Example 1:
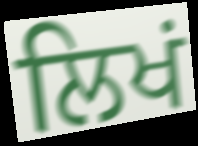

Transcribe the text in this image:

ਲਿਖਂ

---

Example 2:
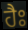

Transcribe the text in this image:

ਹੈਃ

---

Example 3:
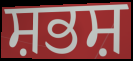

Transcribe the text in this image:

ਸ਼ਭਸ਼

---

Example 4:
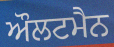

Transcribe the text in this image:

ਔਲਟਮੈਨ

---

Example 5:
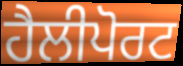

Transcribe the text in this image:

ਹੈਲੀਪੋਰਟ